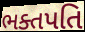
ભક્તપતિ